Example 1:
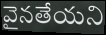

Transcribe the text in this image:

వైనతేయని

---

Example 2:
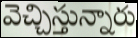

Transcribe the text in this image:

వెచ్చిస్తున్నారు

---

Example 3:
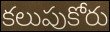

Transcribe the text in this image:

కలుపుకోరు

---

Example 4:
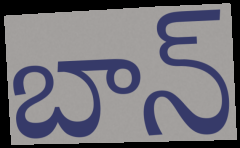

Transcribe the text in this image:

బాన్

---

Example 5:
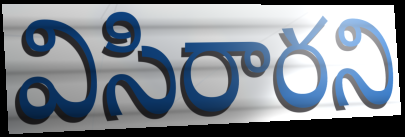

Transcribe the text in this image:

విసిరారని